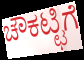
ಚೌಕಟ್ಟಿಗೆ